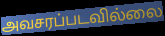
அவசரப்படவில்லை